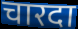
चारदा